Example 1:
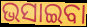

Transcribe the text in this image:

ଭସାଇବା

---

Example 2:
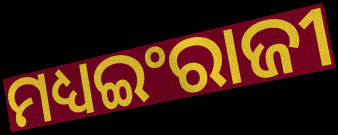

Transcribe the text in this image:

ମଧ୍ୟଇଂରାଜୀ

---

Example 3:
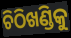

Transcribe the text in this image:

ଚିଠିଖଣ୍ଡିକୁ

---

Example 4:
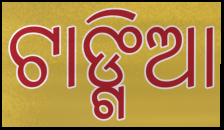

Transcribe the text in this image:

ଟାଙ୍ଗିଆ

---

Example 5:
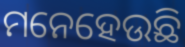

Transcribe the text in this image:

ମନେହେଉଛି